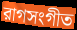
রাগসংগীত